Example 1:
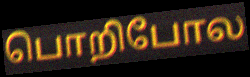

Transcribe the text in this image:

பொறிபோல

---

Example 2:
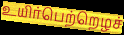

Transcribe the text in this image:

உயிர்பெற்றெழச்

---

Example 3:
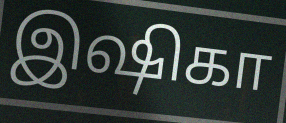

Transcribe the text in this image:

இஷிகா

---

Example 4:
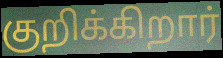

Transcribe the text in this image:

குறிக்கிறார்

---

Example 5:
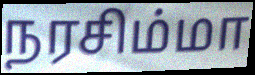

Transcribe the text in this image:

நரசிம்மா